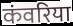
कंवरिया